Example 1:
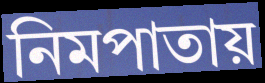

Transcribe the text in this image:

নিমপাতায়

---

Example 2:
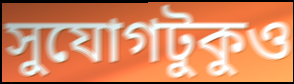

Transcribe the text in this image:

সুযোগটুকুও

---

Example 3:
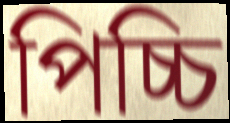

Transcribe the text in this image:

পিচ্চি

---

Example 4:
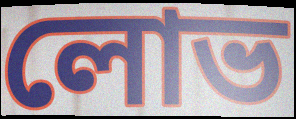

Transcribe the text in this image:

লোভ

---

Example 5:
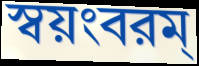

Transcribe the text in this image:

স্বয়ংবরম্